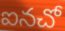
ఐనచో